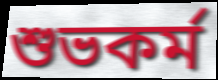
শুভকর্ম